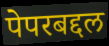
पेपरबद्दल